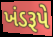
ખંડરૂપે